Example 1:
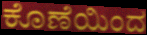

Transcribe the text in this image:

ಕೊಣೆಯಿಂದ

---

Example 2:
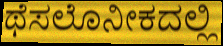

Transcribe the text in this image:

ಥೆಸಲೊನೀಕದಲ್ಲಿ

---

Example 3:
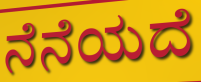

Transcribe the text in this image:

ನೆನೆಯದೆ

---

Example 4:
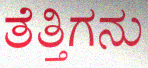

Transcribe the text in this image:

ತೆತ್ತಿಗನು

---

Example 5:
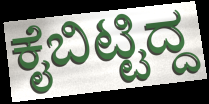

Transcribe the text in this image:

ಕೈಬಿಟ್ಟಿದ್ದ